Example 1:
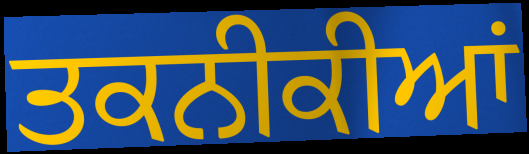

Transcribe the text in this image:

ਤਕਨੀਕੀਆਂ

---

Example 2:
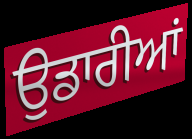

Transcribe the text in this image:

ਉੁਡਾਰੀਆਂ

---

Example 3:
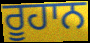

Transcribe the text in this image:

ਰੂਹਾਨ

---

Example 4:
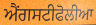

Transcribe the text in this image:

ਐਂਗਸਟੀਫੋਲੀਆ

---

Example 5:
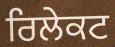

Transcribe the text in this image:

ਰਿਲੇਕਟ